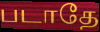
படாதே